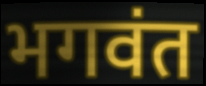
भगवंत